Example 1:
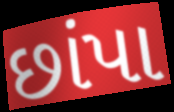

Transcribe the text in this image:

છાંપા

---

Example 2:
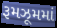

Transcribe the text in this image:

રૂમઝૂમમાં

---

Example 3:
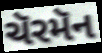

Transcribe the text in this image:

ચૅરમૅન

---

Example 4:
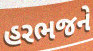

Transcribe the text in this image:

હરભજને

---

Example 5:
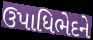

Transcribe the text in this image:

ઉપાધિભેદને